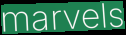
marvels